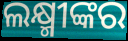
ଲକ୍ଷ୍ମୀଙ୍କର